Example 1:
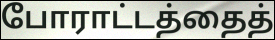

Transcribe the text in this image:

போராட்டத்தைத்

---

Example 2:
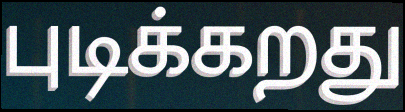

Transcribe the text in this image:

புடிக்கறது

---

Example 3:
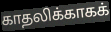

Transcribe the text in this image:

காதலிக்காகக்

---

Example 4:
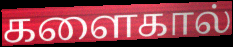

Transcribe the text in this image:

களைகால்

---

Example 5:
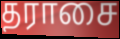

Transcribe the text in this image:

தராசை